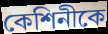
কেশিনীকে